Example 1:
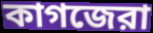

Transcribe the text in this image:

কাগজেরা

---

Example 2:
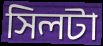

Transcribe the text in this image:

সিলটা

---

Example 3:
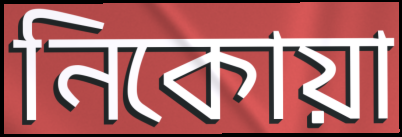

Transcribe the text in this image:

নিকোয়া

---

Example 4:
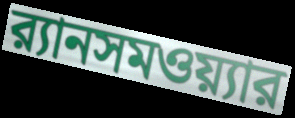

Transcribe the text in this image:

র‍্যানসমওয়্যার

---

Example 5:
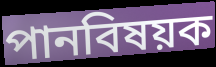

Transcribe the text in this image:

পানবিষয়ক